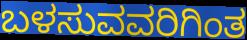
ಬಳಸುವವರಿಗಿಂತ